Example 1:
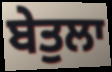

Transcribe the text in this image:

ਬੇਤੁਲਾ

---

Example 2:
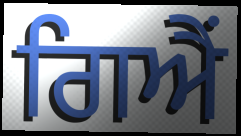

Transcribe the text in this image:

ਗਿਐਂ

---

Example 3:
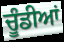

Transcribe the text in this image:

ਚੂੰਡੀਆਂ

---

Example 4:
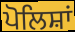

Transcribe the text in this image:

ਪੋਲਿਸ਼ਾਂ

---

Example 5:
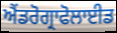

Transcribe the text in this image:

ਐਂਡਰੋਗ੍ਰਾਫੋਲਾਈਡ